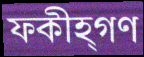
ফকীহ্গণ